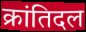
क्रांतिदल